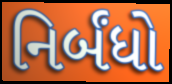
નિર્બંધો